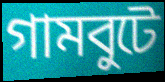
গামবুটে